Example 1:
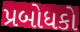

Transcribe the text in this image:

પ્રબોધકો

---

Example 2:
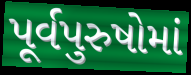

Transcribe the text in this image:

પૂર્વપુરુષોમાં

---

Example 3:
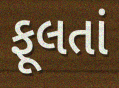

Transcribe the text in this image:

ફૂલતાં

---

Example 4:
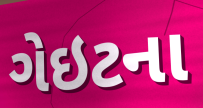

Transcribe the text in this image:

ગેઇટના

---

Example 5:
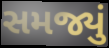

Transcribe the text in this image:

સમજ્યું